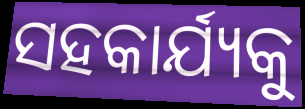
ସହକାର୍ଯ୍ୟକୁ